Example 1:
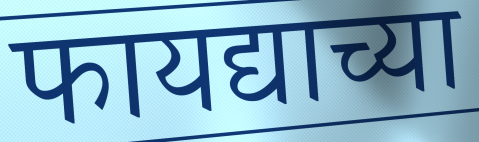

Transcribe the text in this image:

फायद्याच्या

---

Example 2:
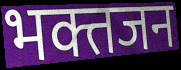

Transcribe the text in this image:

भक्तजन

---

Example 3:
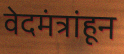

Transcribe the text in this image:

वेदमंत्रांहून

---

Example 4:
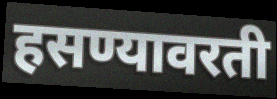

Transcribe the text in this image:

हसण्यावरती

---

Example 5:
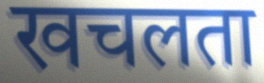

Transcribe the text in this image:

खचलता